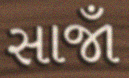
સાજાઁ